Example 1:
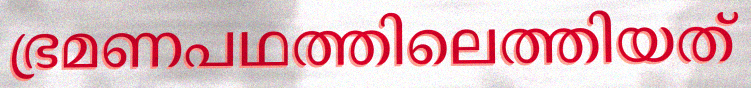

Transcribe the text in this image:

ഭ്രമണപഥത്തിലെത്തിയത്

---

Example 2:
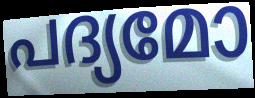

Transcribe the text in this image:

പദ്യമോ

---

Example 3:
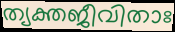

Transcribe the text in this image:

ത്യക്തജീവിതാഃ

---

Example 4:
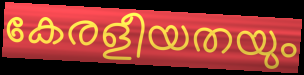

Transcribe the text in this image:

കേരളീയതയും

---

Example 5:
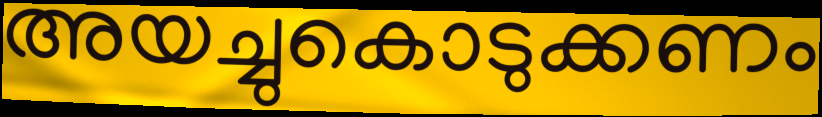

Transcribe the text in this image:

അയച്ചുകൊടുക്കണം